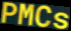
PMCs